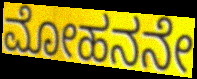
ಮೋಹನನೇ